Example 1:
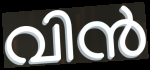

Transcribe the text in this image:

വിൻ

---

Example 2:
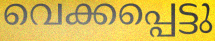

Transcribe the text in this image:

വെക്കപ്പെട്ടു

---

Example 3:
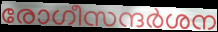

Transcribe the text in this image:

രോഗീസന്ദർശന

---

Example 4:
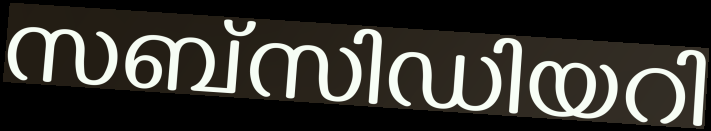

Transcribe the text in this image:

സബ്സിഡിയറി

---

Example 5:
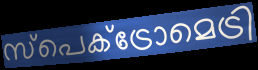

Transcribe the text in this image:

സ്പെക്ട്രോമെട്രി